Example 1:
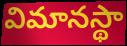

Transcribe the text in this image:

విమానస్థా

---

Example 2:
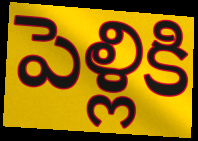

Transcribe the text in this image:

పెళ్లికి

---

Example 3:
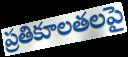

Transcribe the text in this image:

ప్రతికూలతలపై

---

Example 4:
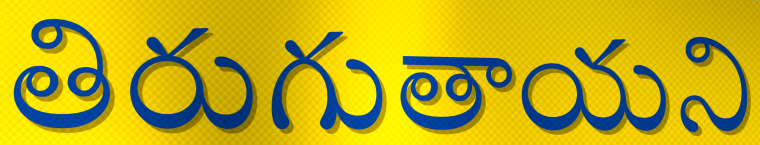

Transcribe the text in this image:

తిరుగుతాయని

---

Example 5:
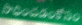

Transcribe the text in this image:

సాధించడంకోసం